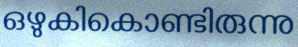
ഒഴുകികൊണ്ടിരുന്നു